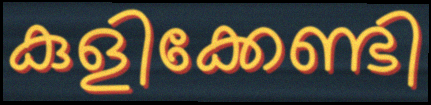
കുളിക്കേണ്ടി